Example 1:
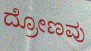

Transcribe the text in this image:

ದ್ರೋಣವು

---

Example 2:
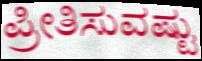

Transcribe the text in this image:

ಪ್ರೀತಿಸುವಷ್ಟು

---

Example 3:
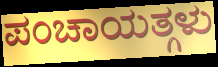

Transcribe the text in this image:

ಪಂಚಾಯತ್ಗಳು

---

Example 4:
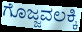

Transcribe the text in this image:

ಗೊಜ್ಜವಲಕ್ಕಿ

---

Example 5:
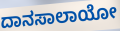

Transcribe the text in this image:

ದಾನಸಾಲಾಯೋ